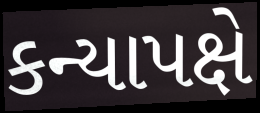
કન્યાપક્ષે